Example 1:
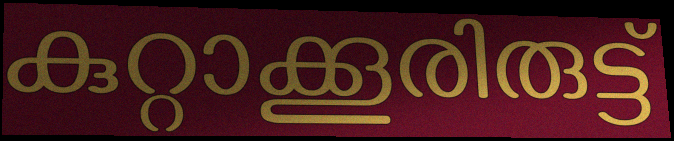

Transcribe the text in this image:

കുറ്റാക്കൂരിരുട്ട്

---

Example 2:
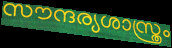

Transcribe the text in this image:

സൗന്ദര്യശാസ്ത്രം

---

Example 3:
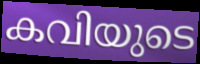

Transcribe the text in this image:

കവിയുടെ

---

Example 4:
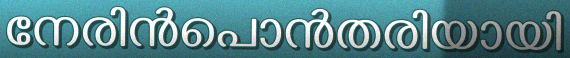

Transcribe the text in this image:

നേരിൻപൊൻതരിയായി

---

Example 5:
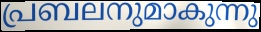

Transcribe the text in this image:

പ്രബലനുമാകുന്നു